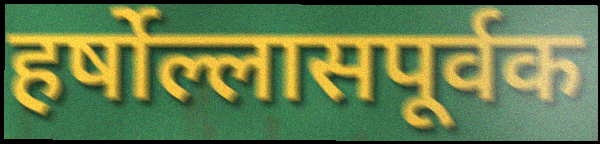
हर्षोल्लासपूर्वक